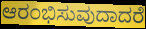
ಆರಂಭಿಸುವುದಾದರೆ